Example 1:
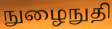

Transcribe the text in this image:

நுழைநுதி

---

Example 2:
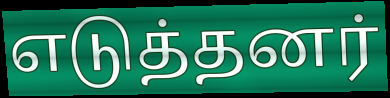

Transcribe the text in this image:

எடுத்தனர்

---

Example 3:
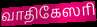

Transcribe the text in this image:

வாதிகேஸரி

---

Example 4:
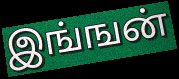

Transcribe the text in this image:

இங்ஙன்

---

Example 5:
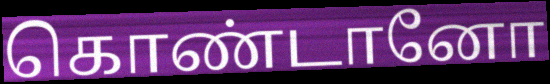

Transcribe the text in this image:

கொண்டானோ